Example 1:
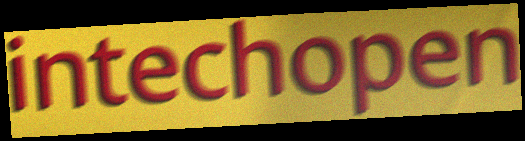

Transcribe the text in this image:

intechopen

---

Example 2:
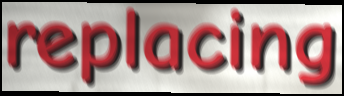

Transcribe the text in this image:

replacing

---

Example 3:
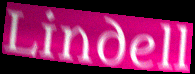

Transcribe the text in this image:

Lindell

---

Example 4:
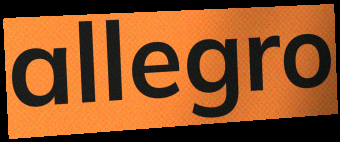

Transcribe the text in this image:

allegro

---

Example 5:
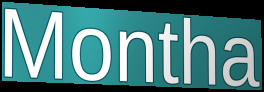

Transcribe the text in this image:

Montha